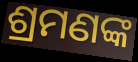
ଶ୍ରମଣଙ୍କ